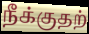
நீக்குதற்